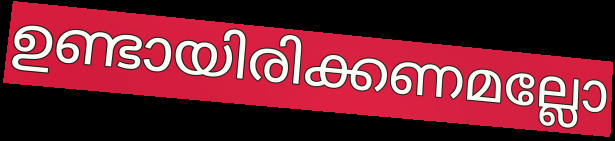
ഉണ്ടായിരിക്കണമല്ലോ